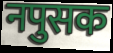
नपुसक